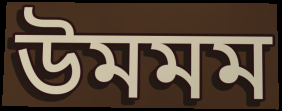
উমমম